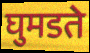
घुमडते